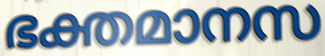
ഭക്തമാനസ